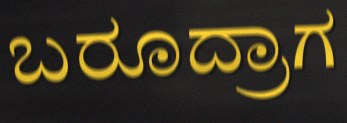
ಬರೂದ್ರಾಗ